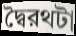
দ্বৈরথটা